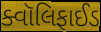
ક્વૉલિફાઈડ